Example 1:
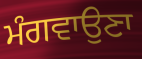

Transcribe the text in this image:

ਮੰਗਵਾਉਣਾ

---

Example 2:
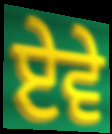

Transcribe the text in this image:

ਏਵੇ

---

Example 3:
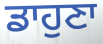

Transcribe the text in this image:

ਡਾਹੁਣਾ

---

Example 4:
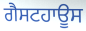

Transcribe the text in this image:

ਗੈਸਟਹਾਊਸ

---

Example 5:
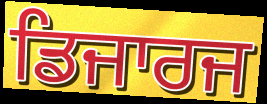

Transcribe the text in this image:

ਡਿਜਾਰਜ